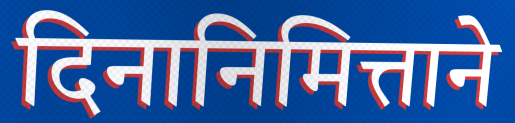
दिनानिमित्ताने